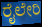
ರೈಲೇರಿ